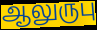
ஆலுருபு